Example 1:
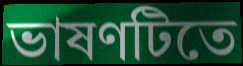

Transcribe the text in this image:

ভাষণটিতে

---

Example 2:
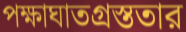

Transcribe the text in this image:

পক্ষাঘাতগ্রস্ততার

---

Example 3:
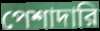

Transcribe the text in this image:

পেশাদারি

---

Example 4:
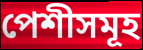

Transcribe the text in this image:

পেশীসমূহ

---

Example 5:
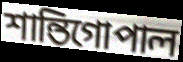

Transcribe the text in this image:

শান্তিগোপাল